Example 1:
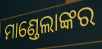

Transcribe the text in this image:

ମାଣ୍ଡେଲାଙ୍କର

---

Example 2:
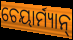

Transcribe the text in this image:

ଚେୟାର୍ମ୍ୟାନ୍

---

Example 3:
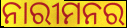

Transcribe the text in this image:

ନାରୀମନର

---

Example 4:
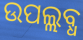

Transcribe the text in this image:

ଉପଲ୍ଲବ୍ଧ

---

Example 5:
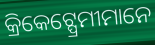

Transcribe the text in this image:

କ୍ରିକେଟ୍ପ୍ରେମୀମାନେ